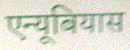
एन्यूबियास